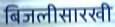
बिजलीसारखी